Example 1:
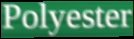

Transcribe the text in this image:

Polyester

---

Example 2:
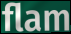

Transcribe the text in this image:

flam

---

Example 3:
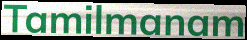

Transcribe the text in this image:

Tamilmanam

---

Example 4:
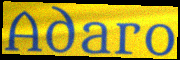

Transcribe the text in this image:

Adaro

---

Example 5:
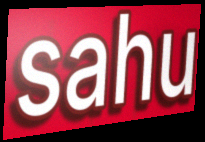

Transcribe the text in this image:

sahu